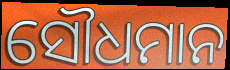
ସୌଧମାନ